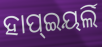
ହାପ୍ଇୟର୍ଲି